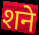
शने